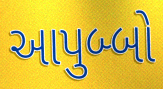
આપુબ્બો